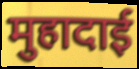
मुहादाई